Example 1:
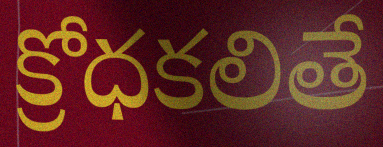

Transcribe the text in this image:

క్రోధకలితే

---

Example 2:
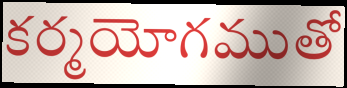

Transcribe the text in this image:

కర్మయోగముతో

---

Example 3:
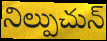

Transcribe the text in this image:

నిల్పుచున్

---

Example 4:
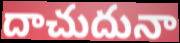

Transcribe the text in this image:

దాచుదునా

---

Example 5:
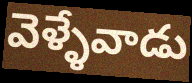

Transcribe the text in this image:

వెళ్ళేవాడు